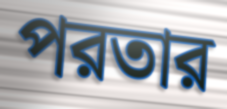
পরতার